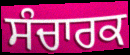
ਸੰਚਾਰਕ